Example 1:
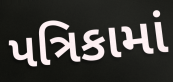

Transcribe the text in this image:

પત્રિકામાં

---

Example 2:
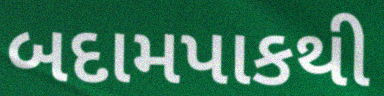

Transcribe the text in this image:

બદામપાકથી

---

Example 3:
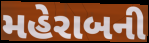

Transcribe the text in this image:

મહેરાબની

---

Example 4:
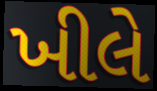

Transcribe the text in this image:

ખીલે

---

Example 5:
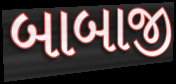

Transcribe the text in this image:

બાબાજી